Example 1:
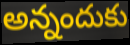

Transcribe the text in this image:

అన్నందుకు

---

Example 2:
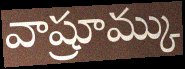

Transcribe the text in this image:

వాష్రూమ్కు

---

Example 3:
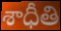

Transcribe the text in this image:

శాధీతి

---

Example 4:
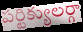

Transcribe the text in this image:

పర్టిక్యులర్గా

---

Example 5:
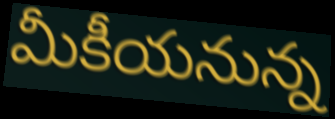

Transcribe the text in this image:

మీకీయనున్న